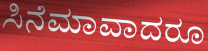
ಸಿನೆಮಾವಾದರೂ